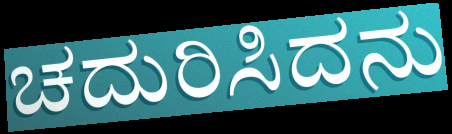
ಚದುರಿಸಿದನು